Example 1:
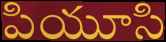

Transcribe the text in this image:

పియూసి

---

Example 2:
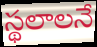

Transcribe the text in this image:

స్థలాలనే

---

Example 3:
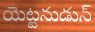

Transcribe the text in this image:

యెట్టనుడున్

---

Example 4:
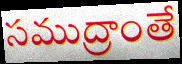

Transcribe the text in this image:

సముద్రాంతే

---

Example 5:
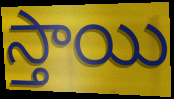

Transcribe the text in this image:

స్తాయి